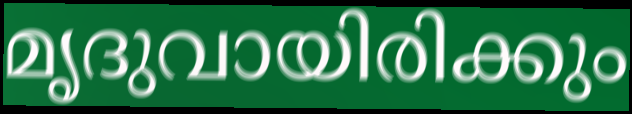
മൃദുവായിരിക്കും